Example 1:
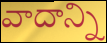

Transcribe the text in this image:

వాదాన్ని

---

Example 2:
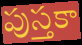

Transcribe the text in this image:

పుస్తకా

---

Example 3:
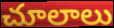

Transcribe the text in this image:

చూలాలు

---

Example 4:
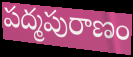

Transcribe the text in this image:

పద్మపురాణం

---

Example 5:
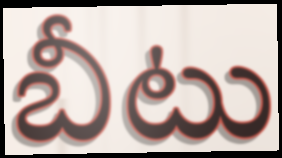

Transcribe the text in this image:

బీటు